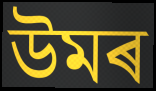
উমৰ